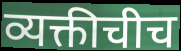
व्यक्तीचीच